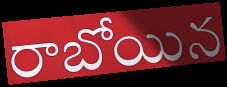
రాబోయిన